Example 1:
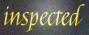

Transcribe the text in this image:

inspected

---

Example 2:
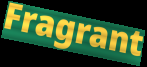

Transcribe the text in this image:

Fragrant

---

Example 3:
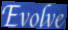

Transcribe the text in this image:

Evolve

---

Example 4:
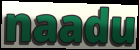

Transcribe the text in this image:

naadu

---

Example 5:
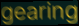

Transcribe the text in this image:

gearing